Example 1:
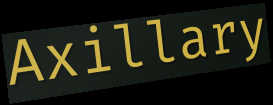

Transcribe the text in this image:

Axillary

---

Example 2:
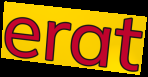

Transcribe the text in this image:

erat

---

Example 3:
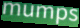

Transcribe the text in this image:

mumps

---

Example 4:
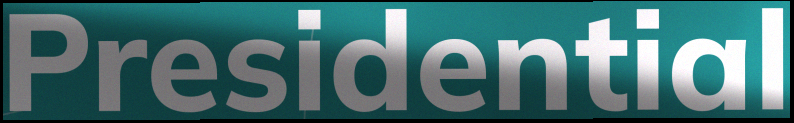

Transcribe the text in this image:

Presidential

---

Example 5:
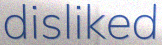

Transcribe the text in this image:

disliked